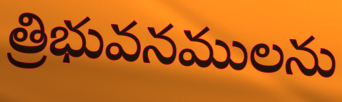
త్రిభువనములను